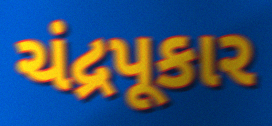
ચંદ્રપૂકાર